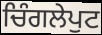
ਚਿੰਗਲੇਪੁਟ